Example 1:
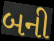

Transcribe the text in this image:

બની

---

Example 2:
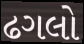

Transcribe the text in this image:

ઢગલો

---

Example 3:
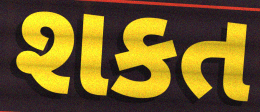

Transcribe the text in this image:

શકત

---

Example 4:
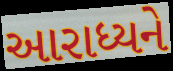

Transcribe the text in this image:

આરાધ્યને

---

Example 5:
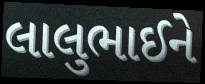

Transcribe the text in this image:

લાલુભાઈને